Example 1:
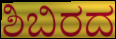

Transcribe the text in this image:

ಶಿಬಿರದ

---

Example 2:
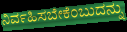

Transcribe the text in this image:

ನಿರ್ವಹಿಸಬೇಕೆಂಬುದನ್ನು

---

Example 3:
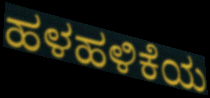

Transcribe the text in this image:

ಹಳಹಳಿಕೆಯ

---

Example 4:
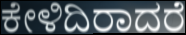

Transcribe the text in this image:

ಕೇಳಿದಿರಾದರೆ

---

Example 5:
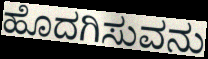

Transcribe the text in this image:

ಹೊದಗಿಸುವನು